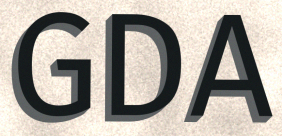
GDA